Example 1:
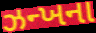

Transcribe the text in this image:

ઝન્ખના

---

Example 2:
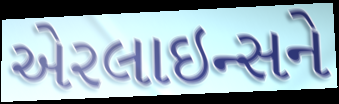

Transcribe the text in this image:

એરલાઇન્સને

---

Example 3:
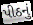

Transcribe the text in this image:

પીઠનું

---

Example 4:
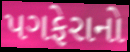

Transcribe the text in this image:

પગફેરાનો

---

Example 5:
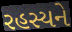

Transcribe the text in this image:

રહસ્યને